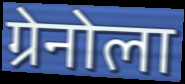
ग्रेनोला